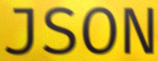
JSON